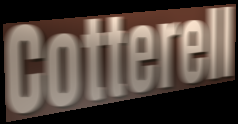
Cotterell